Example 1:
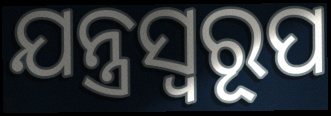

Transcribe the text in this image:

ଯନ୍ତ୍ରସ୍ୱରୂପ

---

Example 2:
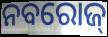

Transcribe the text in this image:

ନବରୋଜ୍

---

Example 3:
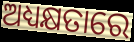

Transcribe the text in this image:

ଅଧ୍ଯକ୍ଷତାରେ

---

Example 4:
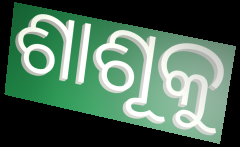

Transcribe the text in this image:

ଶାଶୂକୁ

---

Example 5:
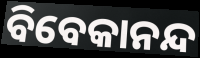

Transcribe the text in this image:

ବିବେକାନନ୍ଦ